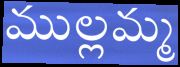
ముల్లమ్మ